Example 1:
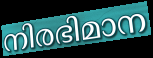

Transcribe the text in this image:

നിരഭിമാന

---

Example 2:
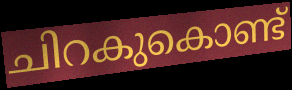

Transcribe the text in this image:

ചിറകുകൊണ്ട്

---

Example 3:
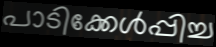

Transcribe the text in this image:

പാടിക്കേൾപ്പിച്ച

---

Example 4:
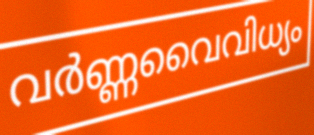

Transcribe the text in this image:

വർണ്ണവൈവിധ്യം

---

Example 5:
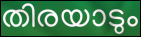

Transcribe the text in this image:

തിരയാടും